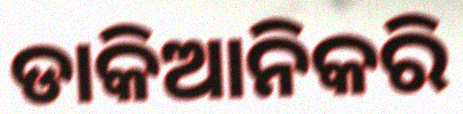
ଡାକିଆନିକରି